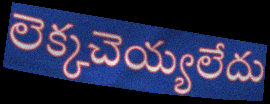
లెక్కచెయ్యలేదు